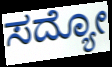
ಸದ್ಯೋ